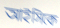
আইসিকে